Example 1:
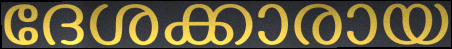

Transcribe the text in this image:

ദേശക്കാരായ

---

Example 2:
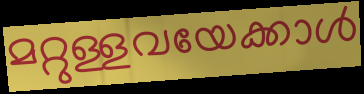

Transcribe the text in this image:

മറ്റുള്ളവയേക്കാൾ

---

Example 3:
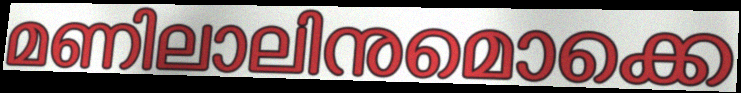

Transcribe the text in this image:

മണിലാലിനുമൊക്കെ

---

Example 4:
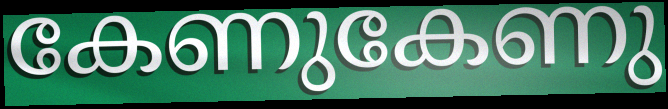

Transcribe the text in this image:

കേണുകേണു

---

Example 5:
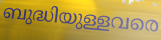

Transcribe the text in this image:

ബുദ്ധിയുള്ളവരെ